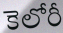
కెలోరీ